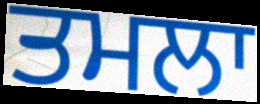
ਤਮਲਾ